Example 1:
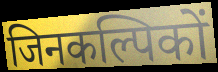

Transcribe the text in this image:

जिनकल्पिकों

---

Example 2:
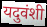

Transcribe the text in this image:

यदुवंशी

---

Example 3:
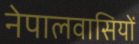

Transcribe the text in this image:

नेपालवासियों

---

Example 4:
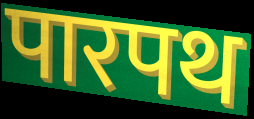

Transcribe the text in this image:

पारपथ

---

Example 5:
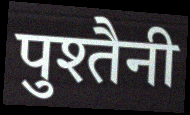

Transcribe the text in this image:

पुश्‍तैनी